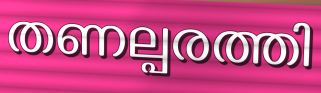
തണല്പരത്തി